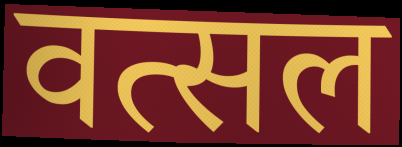
वत्सल